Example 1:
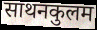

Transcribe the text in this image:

साथनकुलम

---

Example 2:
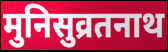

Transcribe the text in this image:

मुनिसुव्रतनाथ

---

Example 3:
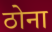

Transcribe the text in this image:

ठोना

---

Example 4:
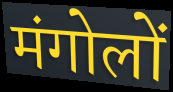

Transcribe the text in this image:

मंगोलों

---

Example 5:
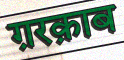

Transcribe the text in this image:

ग़रक़ाब